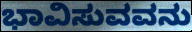
ಭಾವಿಸುವವನು